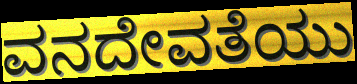
ವನದೇವತೆಯು